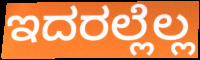
ಇದರಲ್ಲೆಲ್ಲ